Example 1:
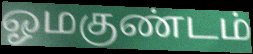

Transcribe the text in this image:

ஓமகுண்டம்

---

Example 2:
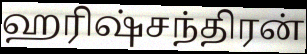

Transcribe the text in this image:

ஹரிஷ்சந்திரன்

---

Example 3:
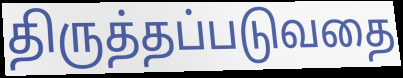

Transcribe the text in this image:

திருத்தப்படுவதை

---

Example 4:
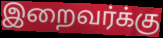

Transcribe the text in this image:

இறைவர்க்கு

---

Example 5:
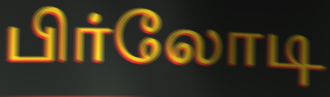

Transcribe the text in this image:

பிர்லோடி